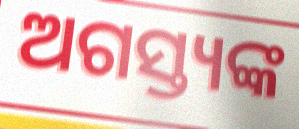
ଅଗସ୍ତ୍ୟଙ୍କ